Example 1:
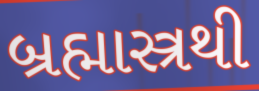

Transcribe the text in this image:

બ્રહ્માસ્ત્રથી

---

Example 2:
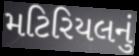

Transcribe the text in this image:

મટિરિયલનું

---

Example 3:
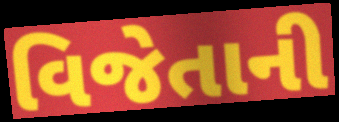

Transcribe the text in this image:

વિજેતાની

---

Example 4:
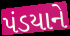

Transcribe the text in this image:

પંડયાને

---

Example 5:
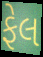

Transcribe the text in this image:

ફેલ